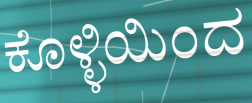
ಕೊಳ್ಳಿಯಿಂದ